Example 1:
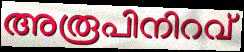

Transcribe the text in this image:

അരൂപിനിറവ്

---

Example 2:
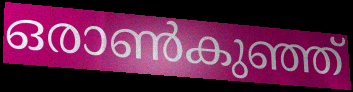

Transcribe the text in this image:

ഒരാൺകുഞ്ഞ്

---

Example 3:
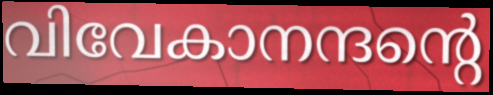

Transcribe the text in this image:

വിവേകാനന്ദന്റെ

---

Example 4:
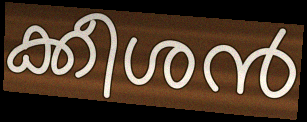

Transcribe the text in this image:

ക്കീശൻ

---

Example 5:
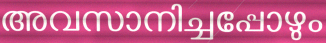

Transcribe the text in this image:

അവസാനിച്ചപ്പോഴും